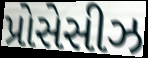
પ્રોસેસીઝ